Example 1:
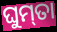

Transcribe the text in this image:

ଘୁମ୍‌ତା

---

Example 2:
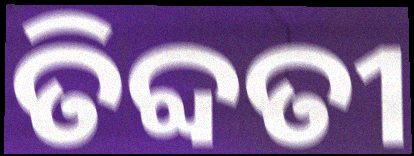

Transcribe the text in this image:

ତିବ୍ଦତୀ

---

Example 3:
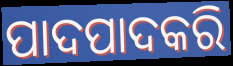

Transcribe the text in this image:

ପାଦପାଦକରି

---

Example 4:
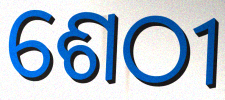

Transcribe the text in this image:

ଶେଠୀ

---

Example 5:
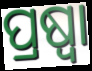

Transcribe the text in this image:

ପ୍ରଷ୍ୱା